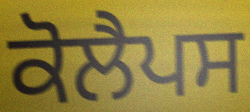
ਕੋਲੈਪਸ